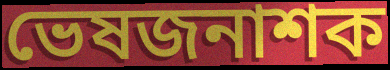
ভেষজনাশক